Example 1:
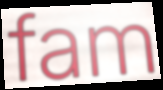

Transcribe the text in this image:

fam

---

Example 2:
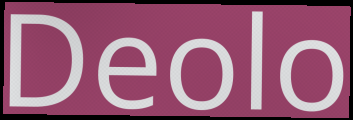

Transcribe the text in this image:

Deolo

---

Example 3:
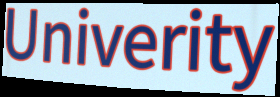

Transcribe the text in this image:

Univerity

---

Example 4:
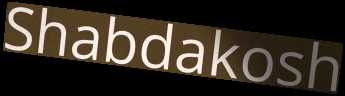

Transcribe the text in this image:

Shabdakosh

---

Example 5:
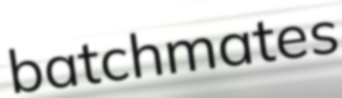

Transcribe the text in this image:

batchmates